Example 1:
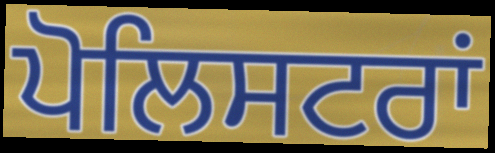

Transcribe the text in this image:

ਪੋਲਿਸਟਰਾਂ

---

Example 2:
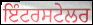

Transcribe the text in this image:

ਇੰਟਰਸਟੇਲਰ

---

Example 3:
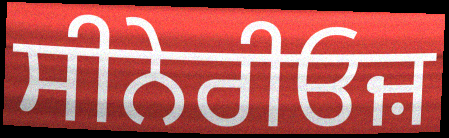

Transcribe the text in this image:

ਸੀਨੇਰੀਓਜ਼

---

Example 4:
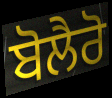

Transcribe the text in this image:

ਬੋਲੈਰੋ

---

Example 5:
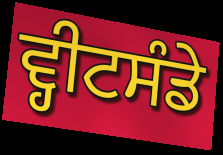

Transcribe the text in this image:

ਵ੍ਹੀਟਸੰਡੇ